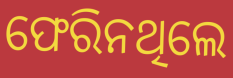
ଫେରିନଥିଲେ